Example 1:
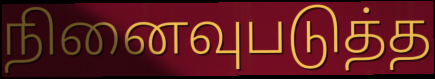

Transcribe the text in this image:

நினைவுபடுத்த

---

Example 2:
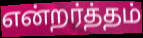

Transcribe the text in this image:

என்றர்த்தம்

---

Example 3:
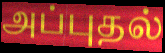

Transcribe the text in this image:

அப்புதல்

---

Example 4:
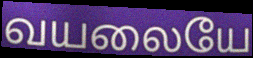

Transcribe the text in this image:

வயலையே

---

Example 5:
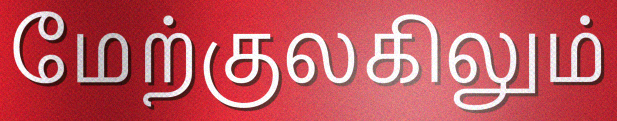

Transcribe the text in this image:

மேற்குலகிலும்